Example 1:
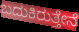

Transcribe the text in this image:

ಬದುಕಿರುತ್ತೇನೆ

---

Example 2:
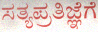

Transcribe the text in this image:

ಸತ್ಯಪ್ರತಿಜ್ಞೆಗೆ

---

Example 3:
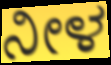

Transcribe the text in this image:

ನೀಳ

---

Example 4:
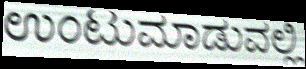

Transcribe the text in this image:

ಉಂಟುಮಾಡುವಲ್ಲಿ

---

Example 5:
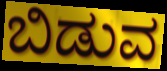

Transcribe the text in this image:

ಬಿಡುವ